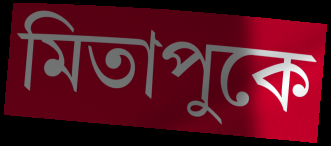
মিতাপুকে